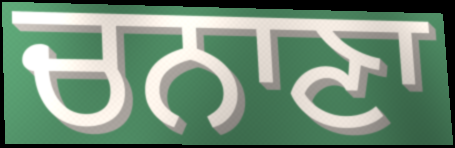
ਚਨਾਣਾ